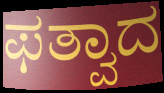
ಫತ್ವಾದ